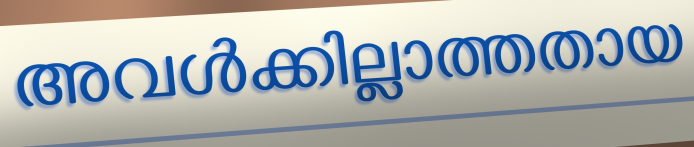
അവൾക്കില്ലാത്തതായ